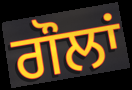
ਗੌਲਾਂ